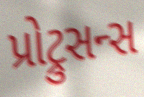
પ્રોટ્રુસન્સ